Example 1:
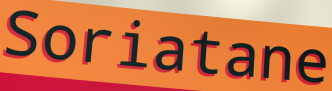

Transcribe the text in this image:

Soriatane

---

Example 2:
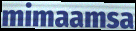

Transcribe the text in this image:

mimaamsa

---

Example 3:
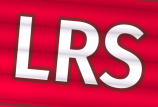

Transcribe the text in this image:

LRS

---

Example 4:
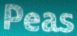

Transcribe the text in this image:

Peas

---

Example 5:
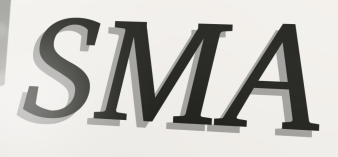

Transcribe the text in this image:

SMA